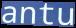
antu